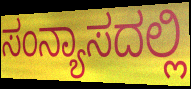
ಸಂನ್ಯಾಸದಲ್ಲಿ